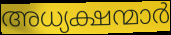
അധ്യക്ഷന്മാർ